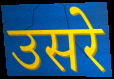
उसरे